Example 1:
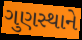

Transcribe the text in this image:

ગુણસ્થાને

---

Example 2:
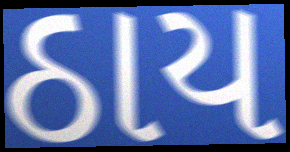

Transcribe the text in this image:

ઠાય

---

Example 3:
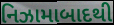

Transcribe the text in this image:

નિઝામાબાદથી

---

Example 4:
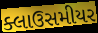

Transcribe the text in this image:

ક્લાઉસમીયર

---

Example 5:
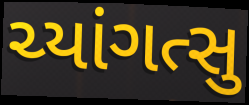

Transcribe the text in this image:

ચ્યાંગત્સુ